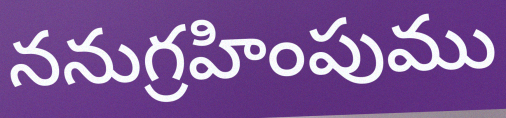
ననుగ్రహింపుము